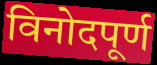
विनोदपूर्ण